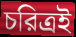
চরিত্রই